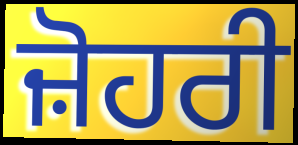
ਜ਼ੋਹਰੀ